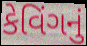
કેવિંગનું